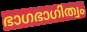
ഭാഗഭാഗിത്വം